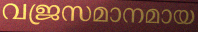
വജ്രസമാനമായ